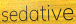
sedative